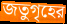
জতুগৃহের